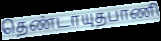
தெண்டாயுதபாணி